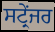
ਸਟ੍ਰੇਂਜਰ